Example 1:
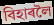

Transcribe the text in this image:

বিহাৰলৈ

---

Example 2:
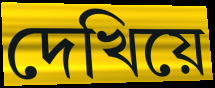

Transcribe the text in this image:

দেখিয়ে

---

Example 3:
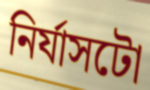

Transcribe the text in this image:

নিৰ্যাসটো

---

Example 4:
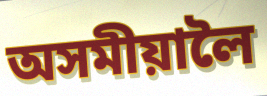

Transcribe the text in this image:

অসমীয়ালৈ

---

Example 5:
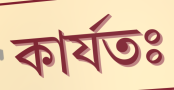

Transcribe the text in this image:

কাৰ্যতঃ